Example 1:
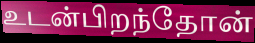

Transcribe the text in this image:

உடன்பிறந்தோன்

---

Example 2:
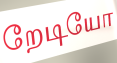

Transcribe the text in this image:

றேடியோ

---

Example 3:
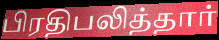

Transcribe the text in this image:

பிரதிபலித்தார்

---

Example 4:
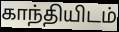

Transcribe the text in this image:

காந்தியிடம்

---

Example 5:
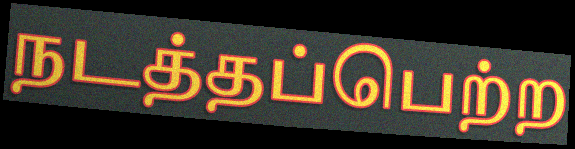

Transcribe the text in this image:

நடத்தப்பெற்ற